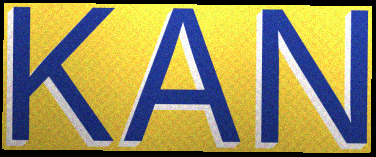
KAN